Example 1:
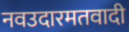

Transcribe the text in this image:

नवउदारमतवादी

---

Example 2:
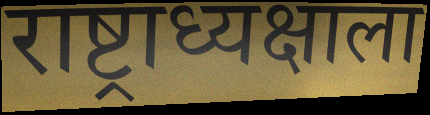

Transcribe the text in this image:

राष्ट्राध्यक्षाला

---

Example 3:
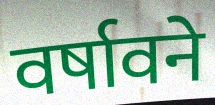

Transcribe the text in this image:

वर्षावने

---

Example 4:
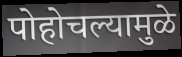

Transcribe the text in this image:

पोहोचल्यामुळे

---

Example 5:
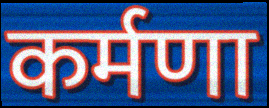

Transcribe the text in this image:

कर्मणा